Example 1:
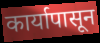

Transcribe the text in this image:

कार्यापासून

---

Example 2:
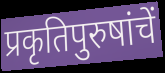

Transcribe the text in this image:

प्रकृतिपुरुषांचें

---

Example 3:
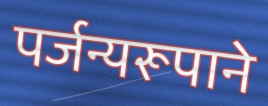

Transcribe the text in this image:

पर्जन्यरूपाने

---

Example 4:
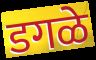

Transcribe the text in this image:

डगळे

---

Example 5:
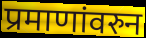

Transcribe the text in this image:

प्रमाणांवरुन